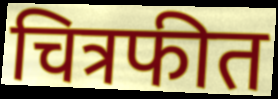
चित्रफीत